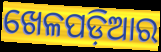
ଖେଳପଡ଼ିଆର